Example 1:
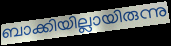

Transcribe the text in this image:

ബാക്കിയില്ലായിരുന്നു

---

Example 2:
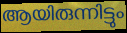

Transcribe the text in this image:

ആയിരുന്നിട്ടും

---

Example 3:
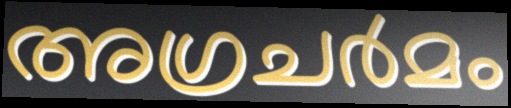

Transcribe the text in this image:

അഗ്രചർമം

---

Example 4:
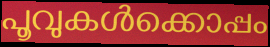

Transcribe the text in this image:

പൂവുകൾക്കൊപ്പം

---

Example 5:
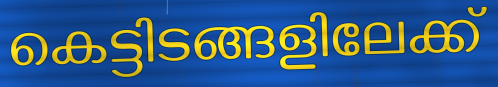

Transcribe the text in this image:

കെട്ടിടങ്ങളിലേക്ക്